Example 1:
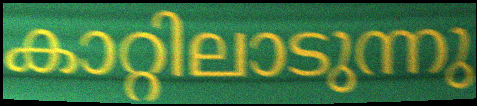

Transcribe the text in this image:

കാറ്റിലാടുന്നു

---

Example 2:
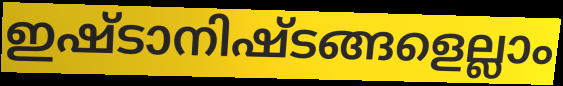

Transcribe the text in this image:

ഇഷ്ടാനിഷ്ടങ്ങളെല്ലാം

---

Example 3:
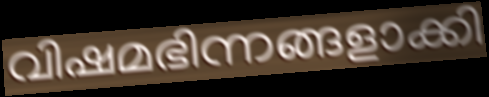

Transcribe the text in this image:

വിഷമഭിന്നങ്ങളാക്കി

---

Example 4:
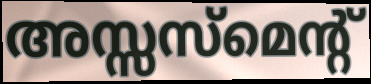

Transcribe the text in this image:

അസ്സസ്മെന്റ്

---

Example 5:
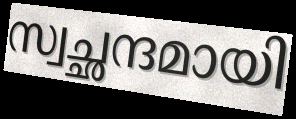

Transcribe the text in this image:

സ്വച്ഛന്ദമായി